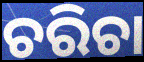
ଚରିଚା